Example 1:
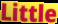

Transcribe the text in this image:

Little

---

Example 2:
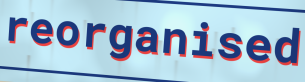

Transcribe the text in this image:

reorganised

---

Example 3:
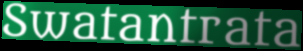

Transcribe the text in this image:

Swatantrata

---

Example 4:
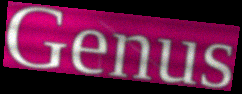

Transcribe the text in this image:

Genus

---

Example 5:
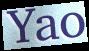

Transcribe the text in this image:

Yao